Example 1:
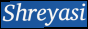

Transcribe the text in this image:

Shreyasi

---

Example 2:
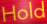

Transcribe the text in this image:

Hold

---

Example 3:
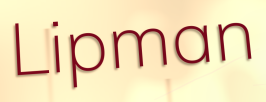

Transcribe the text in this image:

Lipman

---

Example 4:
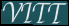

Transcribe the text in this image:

VITT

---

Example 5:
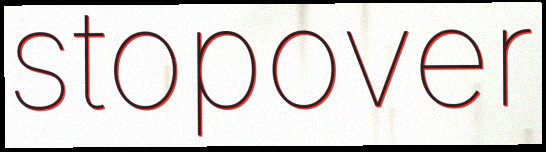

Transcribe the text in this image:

stopover